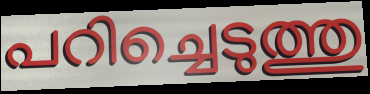
പറിച്ചെടുത്തു